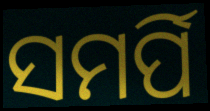
ସମର୍ପି